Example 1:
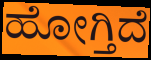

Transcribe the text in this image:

ಹೋಗ್ತಿದೆ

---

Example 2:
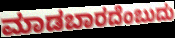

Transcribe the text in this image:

ಮಾಡಬಾರದೆಂಬುದು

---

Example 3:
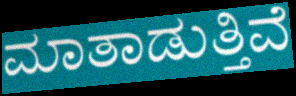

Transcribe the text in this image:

ಮಾತಾಡುತ್ತಿವೆ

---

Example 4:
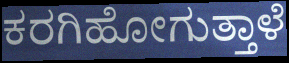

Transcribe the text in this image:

ಕರಗಿಹೋಗುತ್ತಾಳೆ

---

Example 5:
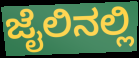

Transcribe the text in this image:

ಜೈಲಿನಲ್ಲಿ